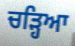
ਚਡ਼੍ਹਿਆ